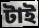
টাই